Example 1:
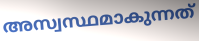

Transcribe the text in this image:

അസ്വസ്ഥമാകുന്നത്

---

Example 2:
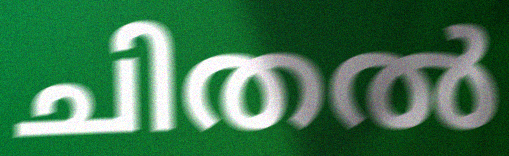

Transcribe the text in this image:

ചിതൽ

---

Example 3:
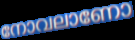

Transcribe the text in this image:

നോവലാണോ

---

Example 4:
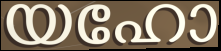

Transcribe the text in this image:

യഹോ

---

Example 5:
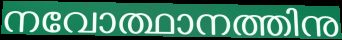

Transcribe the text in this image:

നവോത്ഥാനത്തിനു